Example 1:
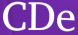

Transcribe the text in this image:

CDe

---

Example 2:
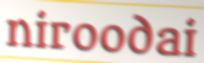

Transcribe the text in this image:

niroodai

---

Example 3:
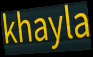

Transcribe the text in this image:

khayla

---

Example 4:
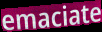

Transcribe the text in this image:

emaciate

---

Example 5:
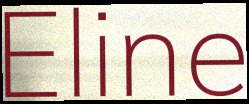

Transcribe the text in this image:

Eline